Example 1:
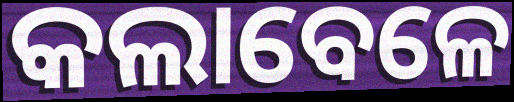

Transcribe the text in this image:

କଲାବେଳେ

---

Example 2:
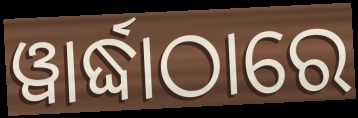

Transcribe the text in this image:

ୱାର୍ଦ୍ଧାଠାରେ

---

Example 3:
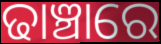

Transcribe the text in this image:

ଢାଞ୍ଚାରେ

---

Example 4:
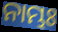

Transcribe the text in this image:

ନାମ୍ଭଃ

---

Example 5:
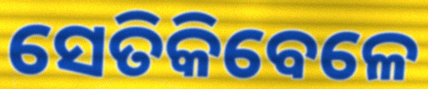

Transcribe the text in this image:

ସେତିକିବେଳେ